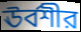
ঊর্বশীর